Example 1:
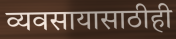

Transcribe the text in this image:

व्यवसायासाठीही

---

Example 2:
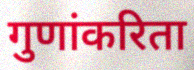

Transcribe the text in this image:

गुणांकरिता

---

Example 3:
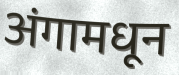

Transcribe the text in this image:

अंगामधून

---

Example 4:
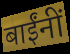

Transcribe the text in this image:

बाईंनीं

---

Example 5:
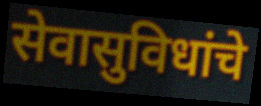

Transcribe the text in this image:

सेवासुविधांचे